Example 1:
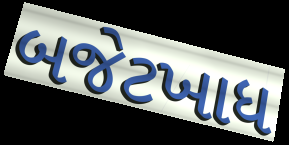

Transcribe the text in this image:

બજેટખાધ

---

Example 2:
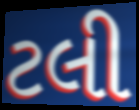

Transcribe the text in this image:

ટલી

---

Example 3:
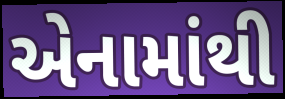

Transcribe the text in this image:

એનામાંથી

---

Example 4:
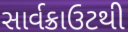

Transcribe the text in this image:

સાર્વક્રાઉટથી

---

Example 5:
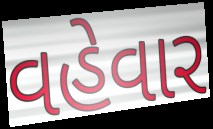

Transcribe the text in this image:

વહેવાર